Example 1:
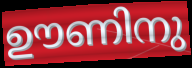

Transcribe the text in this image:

ഊണിനു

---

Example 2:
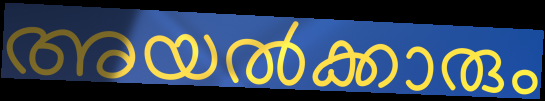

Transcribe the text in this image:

അയൽക്കാരും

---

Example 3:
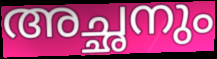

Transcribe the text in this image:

അച്ഛനും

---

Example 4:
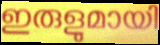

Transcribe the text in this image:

ഇരുളുമായി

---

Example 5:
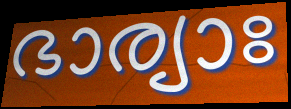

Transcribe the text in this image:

ഭാര്യാഃ